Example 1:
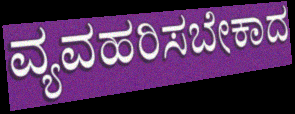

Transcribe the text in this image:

ವ್ಯವಹರಿಸಬೇಕಾದ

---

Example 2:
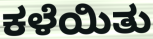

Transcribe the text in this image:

ಕಳೆಯಿತು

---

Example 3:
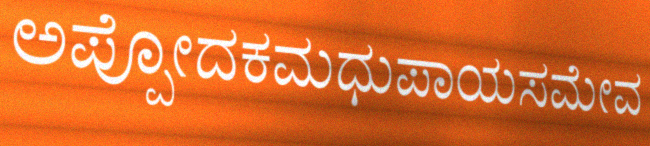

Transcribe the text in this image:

ಅಪ್ಪೋದಕಮಧುಪಾಯಸಮೇವ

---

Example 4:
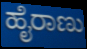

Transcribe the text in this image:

ಹೈರಾಣು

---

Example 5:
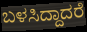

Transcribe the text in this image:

ಬಳಸಿದ್ದಾದರೆ